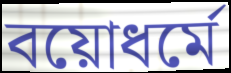
বয়োধর্মে